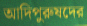
আদিপুরুষদের